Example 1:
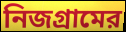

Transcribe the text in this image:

নিজগ্রামের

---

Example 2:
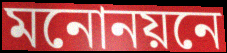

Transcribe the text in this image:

মনোনয়নে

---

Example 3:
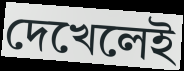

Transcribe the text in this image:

দেখেলেই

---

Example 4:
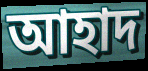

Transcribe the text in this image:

আহাদ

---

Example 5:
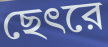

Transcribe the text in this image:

ছেৎরে